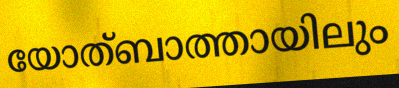
യോത്ബാത്തായിലും